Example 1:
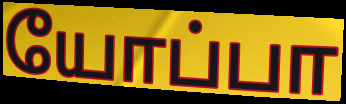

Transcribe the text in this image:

யோப்பா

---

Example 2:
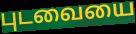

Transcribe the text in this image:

புடவையை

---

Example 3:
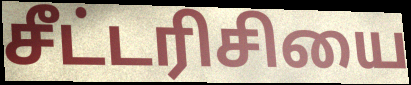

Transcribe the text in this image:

சீட்டரிசியை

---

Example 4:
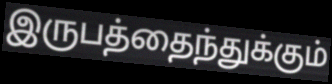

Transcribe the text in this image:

இருபத்தைந்துக்கும்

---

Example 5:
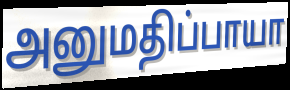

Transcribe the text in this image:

அனுமதிப்பாயா